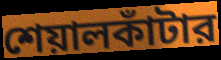
শেয়ালকাঁটার